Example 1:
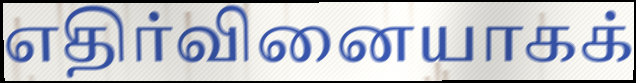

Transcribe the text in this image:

எதிர்வினையாகக்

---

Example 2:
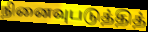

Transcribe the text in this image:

நினைவுபடுத்தித்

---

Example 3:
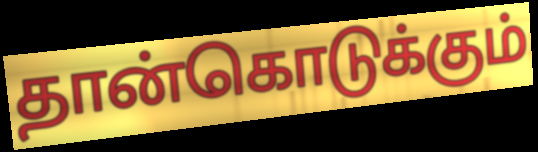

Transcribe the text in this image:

தான்கொடுக்கும்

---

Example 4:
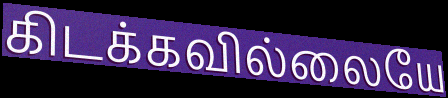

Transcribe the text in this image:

கிடக்கவில்லையே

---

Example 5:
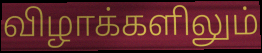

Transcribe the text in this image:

விழாக்களிலும்